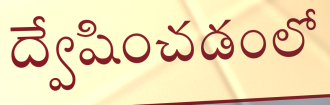
ద్వేషించడంలో